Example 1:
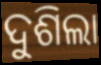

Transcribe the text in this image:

ଦୁଶିଲା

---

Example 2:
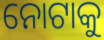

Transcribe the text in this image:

ନୋଟାକୁ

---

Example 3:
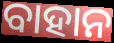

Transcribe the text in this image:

ବାହାନ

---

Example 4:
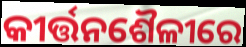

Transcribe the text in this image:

କୀର୍ତ୍ତନଶୈଳୀରେ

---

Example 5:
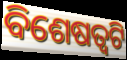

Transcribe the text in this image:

ବିଶେଷତ୍ୱଟି